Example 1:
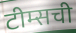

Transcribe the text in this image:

टीम्सची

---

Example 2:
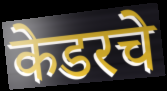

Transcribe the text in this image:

केडरचे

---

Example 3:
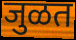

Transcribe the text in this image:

जुळत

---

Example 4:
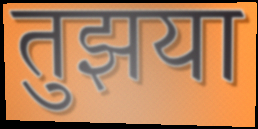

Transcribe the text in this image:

तुझया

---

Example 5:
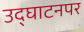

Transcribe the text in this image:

उद्घाटनपर